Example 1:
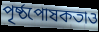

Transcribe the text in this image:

পৃষ্ঠপোষকতাও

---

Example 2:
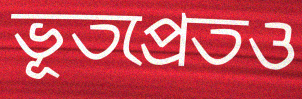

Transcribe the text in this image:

ভূতপ্রেতও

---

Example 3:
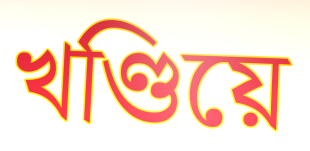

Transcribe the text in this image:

খণ্ডিয়ে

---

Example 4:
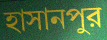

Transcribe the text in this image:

হাসানপুর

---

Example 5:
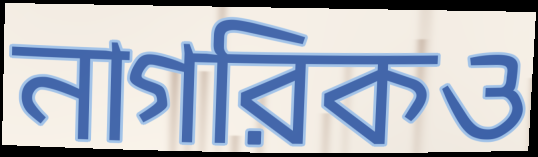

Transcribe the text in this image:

নাগরিকও